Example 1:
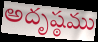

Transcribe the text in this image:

అదృష్ఠము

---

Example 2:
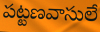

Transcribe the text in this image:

పట్టణవాసులే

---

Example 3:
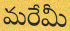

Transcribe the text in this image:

మరేమీ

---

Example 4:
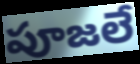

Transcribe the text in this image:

పూజలే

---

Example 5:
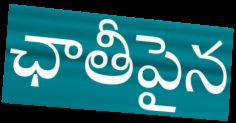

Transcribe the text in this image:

ఛాతీపైన